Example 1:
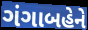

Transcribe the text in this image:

ગંગાબહેને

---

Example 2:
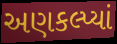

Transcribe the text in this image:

અણકલ્પ્યાં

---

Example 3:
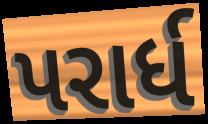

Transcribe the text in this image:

પરાર્ધ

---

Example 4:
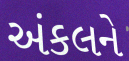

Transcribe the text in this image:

અંકલને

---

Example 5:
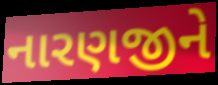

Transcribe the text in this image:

નારણજીને